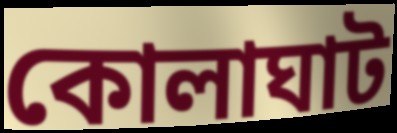
কোলাঘাট